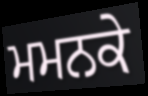
ਮਮਨਕੇ